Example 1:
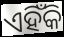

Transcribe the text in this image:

ଏହିଁକି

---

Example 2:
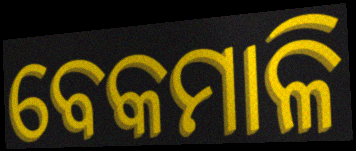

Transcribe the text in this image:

ବେକମାଳି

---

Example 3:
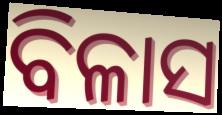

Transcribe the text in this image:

ବିଳାସ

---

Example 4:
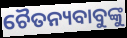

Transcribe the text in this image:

ଚୈତନ୍ୟବାବୁଙ୍କୁ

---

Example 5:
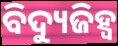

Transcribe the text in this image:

ବିଦ୍ୟୁଜିହ୍ୱ